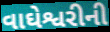
વાઘેશ્વરીની